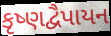
કૃષ્ણદ્વૈપાયન